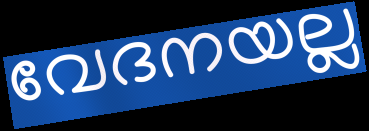
വേദനയല്ല